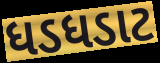
ધડધડાટ